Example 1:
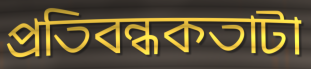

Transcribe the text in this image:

প্রতিবন্ধকতাটা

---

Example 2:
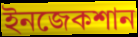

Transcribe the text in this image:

ইনজেকশান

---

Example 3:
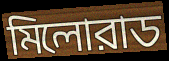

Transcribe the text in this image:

মিলোরাড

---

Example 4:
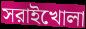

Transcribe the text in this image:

সরাইখোলা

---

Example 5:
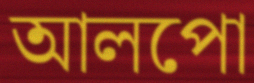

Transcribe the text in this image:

আলপো